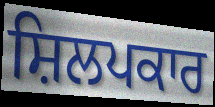
ਸ਼ਿਲਪਕਾਰ